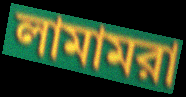
লামামরা